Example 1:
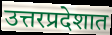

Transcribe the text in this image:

उत्तरप्रदेशात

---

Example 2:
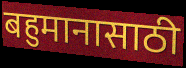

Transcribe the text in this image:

बहुमानासाठी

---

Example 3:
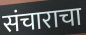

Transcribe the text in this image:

संचाराचा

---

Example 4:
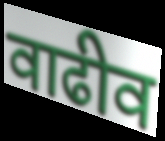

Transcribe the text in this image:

वाढीव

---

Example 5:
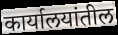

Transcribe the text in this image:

कार्यालयांतील